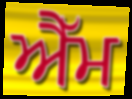
ਐੈੱਮ